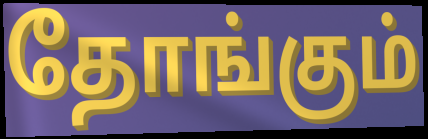
தோங்கும்